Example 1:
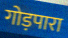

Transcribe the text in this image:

गोड़पारा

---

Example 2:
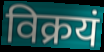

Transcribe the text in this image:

विक्रयं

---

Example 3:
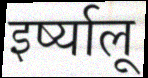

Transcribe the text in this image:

इर्ष्यालू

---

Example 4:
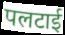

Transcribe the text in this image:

पलटाई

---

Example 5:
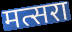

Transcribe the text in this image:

मत्सरा